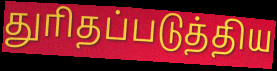
துரிதப்படுத்திய